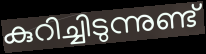
കുറിച്ചിടുന്നുണ്ട്